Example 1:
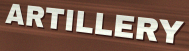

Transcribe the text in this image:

ARTILLERY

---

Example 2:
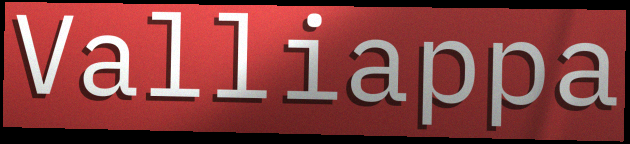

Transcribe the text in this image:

Valliappa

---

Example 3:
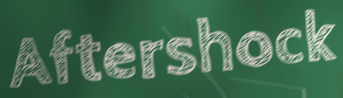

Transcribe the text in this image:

Aftershock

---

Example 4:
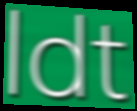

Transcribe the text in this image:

ldt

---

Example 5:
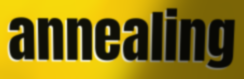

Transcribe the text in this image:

annealing